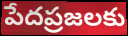
పేదప్రజలకు